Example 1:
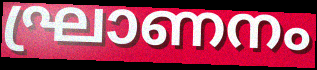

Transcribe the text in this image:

ഘ്രാണനം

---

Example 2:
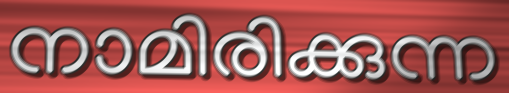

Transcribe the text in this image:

നാമിരിക്കുന്ന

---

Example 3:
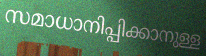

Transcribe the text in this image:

സമാധാനിപ്പിക്കാനുള്ള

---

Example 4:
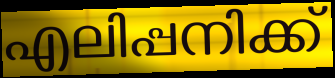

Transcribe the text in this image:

എലിപ്പനിക്ക്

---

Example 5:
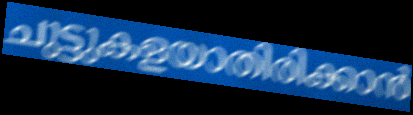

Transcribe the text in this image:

ചുട്ടുകളയാതിരിക്കാൻ